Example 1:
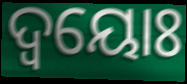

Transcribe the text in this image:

ଦ୍ବୟୋଃ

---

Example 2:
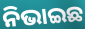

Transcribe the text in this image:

ନିଭାଇଛ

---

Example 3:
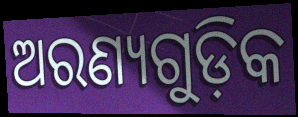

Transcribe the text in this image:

ଅରଣ୍ୟଗୁଡ଼ିକ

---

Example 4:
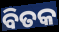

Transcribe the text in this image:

ବିତକ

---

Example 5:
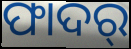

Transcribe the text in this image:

ଫାଦର୍